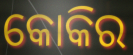
କୋକିର